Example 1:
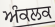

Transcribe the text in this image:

ਅੰਕਲਕ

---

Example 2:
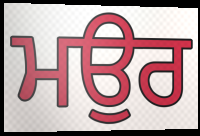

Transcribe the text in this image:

ਮਉਰ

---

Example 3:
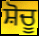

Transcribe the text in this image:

ਸ਼ੋਚੂ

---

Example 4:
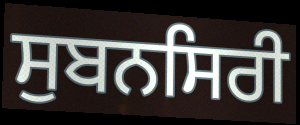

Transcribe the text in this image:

ਸੁਬਨਸਿਰੀ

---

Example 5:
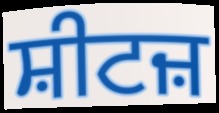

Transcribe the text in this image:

ਸ਼ੀਟਜ਼